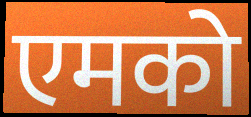
एमको